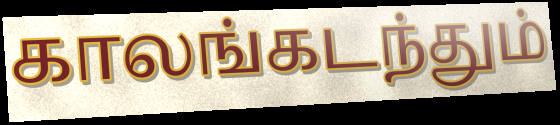
காலங்கடந்தும்